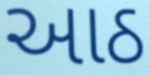
આઠ